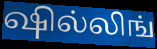
ஷில்லிங்